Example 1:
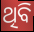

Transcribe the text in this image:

ଥିବି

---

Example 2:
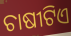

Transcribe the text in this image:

ଚାଷୀଟିଏ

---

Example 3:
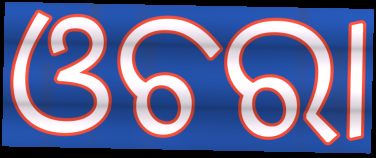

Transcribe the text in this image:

ଓଚରା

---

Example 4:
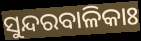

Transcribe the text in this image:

ସୁନ୍ଦରବାଳିକାଃ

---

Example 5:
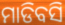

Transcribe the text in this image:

ମାଡିବସି